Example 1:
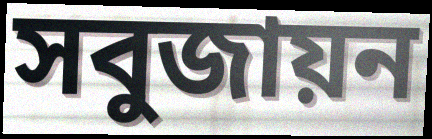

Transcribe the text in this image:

সবুজায়ন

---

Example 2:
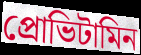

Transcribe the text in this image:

প্রোভিটামিন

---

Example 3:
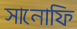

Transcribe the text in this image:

সানোফি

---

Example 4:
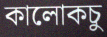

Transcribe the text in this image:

কালোকচু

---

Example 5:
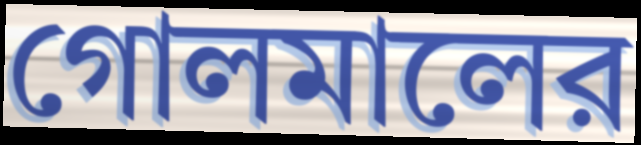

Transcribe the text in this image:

গোলমালের